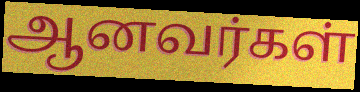
ஆனவர்கள்